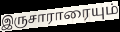
இருசாராரையும்